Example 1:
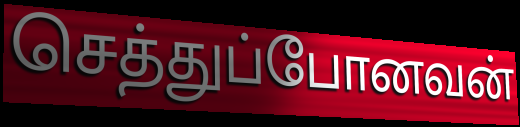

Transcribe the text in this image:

செத்துப்போனவன்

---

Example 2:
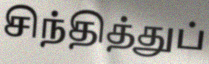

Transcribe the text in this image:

சிந்தித்துப்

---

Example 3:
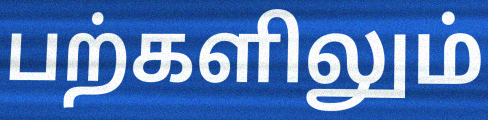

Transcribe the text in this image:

பற்களிலும்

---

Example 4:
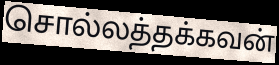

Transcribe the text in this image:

சொல்லத்தக்கவன்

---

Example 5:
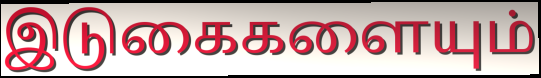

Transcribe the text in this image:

இடுகைகளையும்